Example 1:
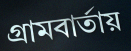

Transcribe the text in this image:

গ্রামবার্তায়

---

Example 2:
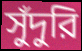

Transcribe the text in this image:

সুঁদুরি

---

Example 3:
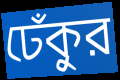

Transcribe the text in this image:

ঢেঁকুর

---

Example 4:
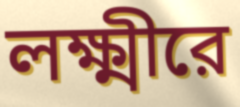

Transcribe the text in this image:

লক্ষ্মীরে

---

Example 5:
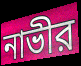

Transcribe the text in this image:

নাভীর